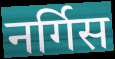
नर्गिस